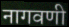
नागवणी